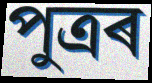
পুত্ৰৰ